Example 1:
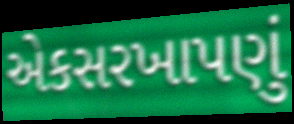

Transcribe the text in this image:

એકસરખાપણું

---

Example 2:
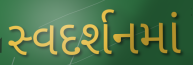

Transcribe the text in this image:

સ્વદર્શનમાં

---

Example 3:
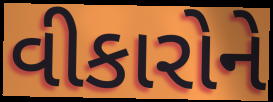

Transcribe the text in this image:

વીકારોને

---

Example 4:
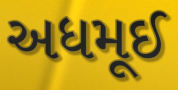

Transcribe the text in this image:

અધમૂઈ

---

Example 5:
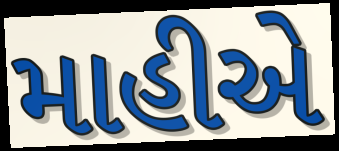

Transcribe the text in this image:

માહીએ